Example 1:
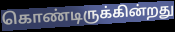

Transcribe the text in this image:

கொண்டிருக்கின்றது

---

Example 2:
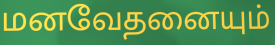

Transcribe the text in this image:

மனவேதனையும்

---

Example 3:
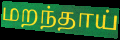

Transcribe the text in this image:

மறந்தாய்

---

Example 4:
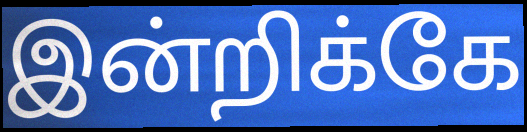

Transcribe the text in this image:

இன்றிக்கே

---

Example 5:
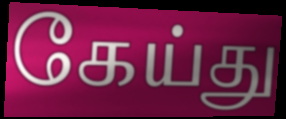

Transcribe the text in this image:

கேய்து